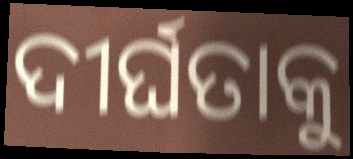
ଦୀର୍ଘତାକୁ